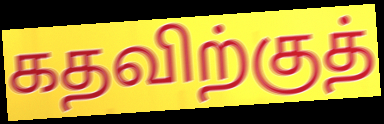
கதவிற்குத்